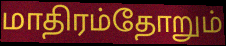
மாதிரம்தோறும்